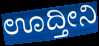
ಊದ್ತೀನಿ